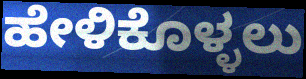
ಹೇಳಿಕೊಳ್ಳಲು